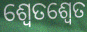
ଶ୍ବେତଶ୍ଵେତ